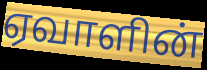
ஏவாளின்